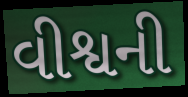
વીશ્વની